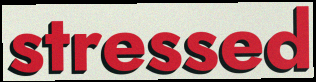
stressed